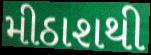
મીઠાશથી